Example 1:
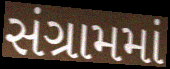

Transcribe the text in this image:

સંગ્રામમાં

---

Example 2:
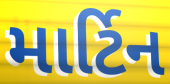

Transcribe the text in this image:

માર્ટિન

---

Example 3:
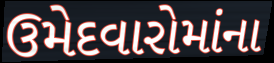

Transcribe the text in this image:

ઉમેદવારોમાંના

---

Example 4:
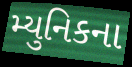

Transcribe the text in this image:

મ્યુનિકના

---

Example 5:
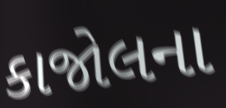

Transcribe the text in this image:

કાજોલના